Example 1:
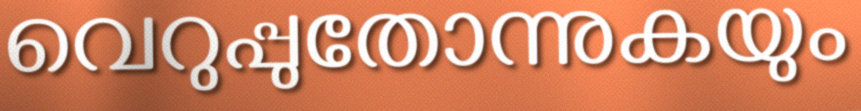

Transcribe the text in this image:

വെറുപ്പുതോന്നുകയും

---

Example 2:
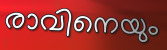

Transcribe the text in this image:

രാവിനെയും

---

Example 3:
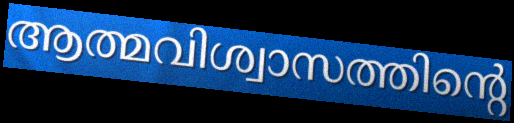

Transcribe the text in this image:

ആത്മവിശ്വാസത്തിന്റെ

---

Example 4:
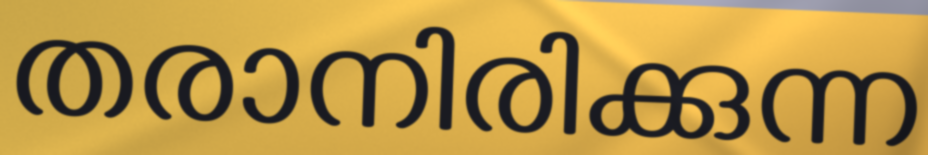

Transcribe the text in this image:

തരാനിരിക്കുന്ന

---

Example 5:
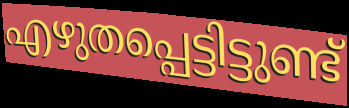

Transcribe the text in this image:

എഴുതപ്പെട്ടിട്ടുണ്ട്